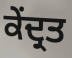
ਕੇਂਦ੍ਰਤ